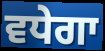
ਵਧੇਗਾ